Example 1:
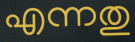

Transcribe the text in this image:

എന്നതു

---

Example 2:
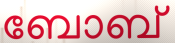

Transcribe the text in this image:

ബോബ്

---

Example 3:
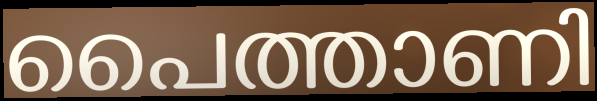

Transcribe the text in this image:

പൈത്താണി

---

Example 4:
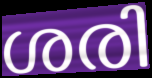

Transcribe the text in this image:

ശരി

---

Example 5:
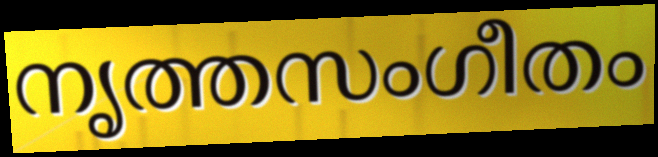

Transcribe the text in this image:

നൃത്തസംഗീതം